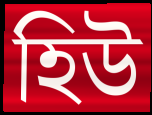
হিউ